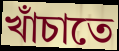
খাঁচাতে